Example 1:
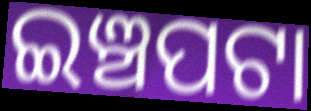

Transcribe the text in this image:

ଇଞ୍ଚପଟା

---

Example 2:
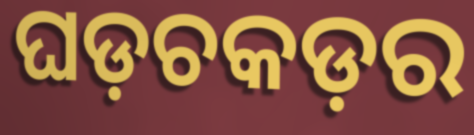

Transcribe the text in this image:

ଘଡ଼ଚକଡ଼ର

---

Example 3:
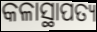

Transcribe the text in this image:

କଳାସ୍ଥାପତ୍ୟ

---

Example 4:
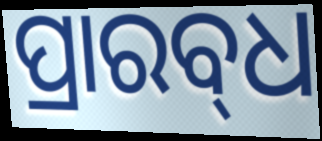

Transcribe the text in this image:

ପ୍ରାରବ୍‍ଧ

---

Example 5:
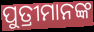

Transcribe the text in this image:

ପୁତ୍ରୀମାନଙ୍କ